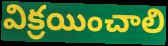
విక్రయించాలి